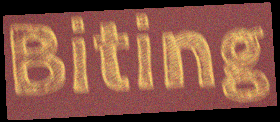
Biting